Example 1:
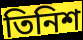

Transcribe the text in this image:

তিনিশ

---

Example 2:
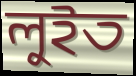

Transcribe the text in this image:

লুইত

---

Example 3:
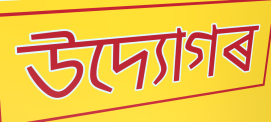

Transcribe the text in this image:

উদ্যোগৰ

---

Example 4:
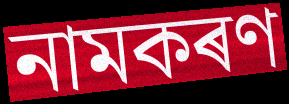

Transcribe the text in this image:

নামকৰণ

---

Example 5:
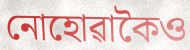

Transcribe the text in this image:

নোহোৱাকৈও